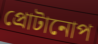
প্রোটানোপ